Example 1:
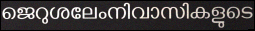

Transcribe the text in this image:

ജെറുശലേംനിവാസികളുടെ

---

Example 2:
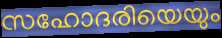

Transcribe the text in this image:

സഹോദരിയെയും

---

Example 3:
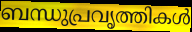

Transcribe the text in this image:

ബന്ധുപ്രവൃത്തികൾ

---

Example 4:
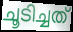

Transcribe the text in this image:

ചൂടിച്ചത്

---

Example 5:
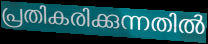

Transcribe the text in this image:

പ്രതികരിക്കുന്നതിൽ